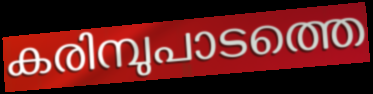
കരിമ്പുപാടത്തെ